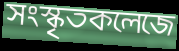
সংস্কৃতকলেজে